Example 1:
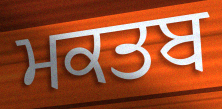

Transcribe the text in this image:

ਮਕਤਬ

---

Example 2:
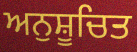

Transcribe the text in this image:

ਅਨੁਸ਼ੂਚਿਤ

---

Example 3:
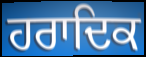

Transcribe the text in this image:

ਹਰਾਦਿਕ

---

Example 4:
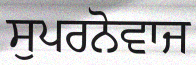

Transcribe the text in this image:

ਸੁਪਰਨੋਵਾਜ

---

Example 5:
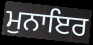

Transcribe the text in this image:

ਮੁਨਾਇਰ